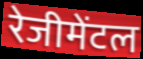
रेजीमेंटल